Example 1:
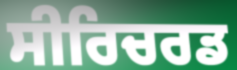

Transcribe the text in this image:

ਸੀਰਿਚਰਡ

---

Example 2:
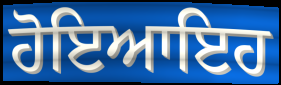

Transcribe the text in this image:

ਹੋਇਆਇਹ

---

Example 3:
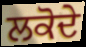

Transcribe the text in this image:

ਲਕੋਦੇ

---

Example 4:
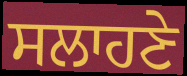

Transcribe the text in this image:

ਸਲਾਹਣੇ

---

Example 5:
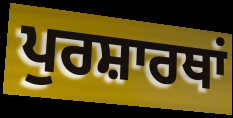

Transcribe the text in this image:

ਪੁਰਸ਼ਾਰਥਾਂ